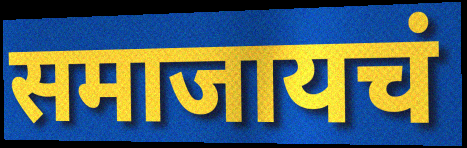
समाजायचं